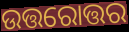
ଉତ୍ତରୋତ୍ତର